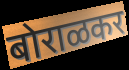
बोराळकर